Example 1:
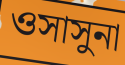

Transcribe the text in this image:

ওসাসুনা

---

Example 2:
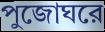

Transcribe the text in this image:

পুজোঘরে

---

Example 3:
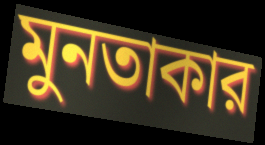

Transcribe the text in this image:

মুনতাকার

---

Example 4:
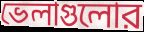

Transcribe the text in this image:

ভেলাগুলোর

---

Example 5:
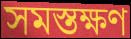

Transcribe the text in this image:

সমস্তক্ষণ